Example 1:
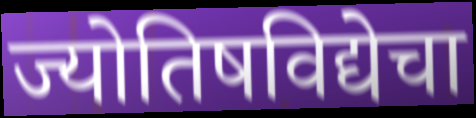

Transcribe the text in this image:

ज्योतिषविद्येचा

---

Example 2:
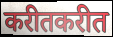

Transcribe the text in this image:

करीतकरीत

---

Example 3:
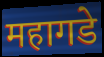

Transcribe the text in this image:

महागडे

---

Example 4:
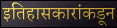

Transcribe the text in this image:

इतिहासकारांकडून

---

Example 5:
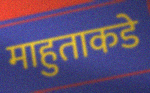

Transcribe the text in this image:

माहुताकडे